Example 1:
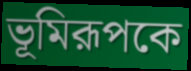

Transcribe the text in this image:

ভূমিরূপকে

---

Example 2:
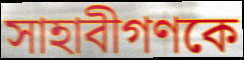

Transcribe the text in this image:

সাহাবীগণকে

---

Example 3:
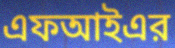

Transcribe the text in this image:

এফআইএর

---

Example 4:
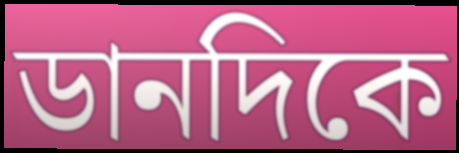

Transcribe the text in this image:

ডানদিকে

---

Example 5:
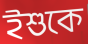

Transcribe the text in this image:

ইশুকে